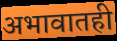
अभावातही